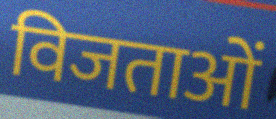
विजताओं